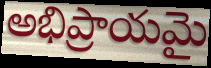
అభిప్రాయమై